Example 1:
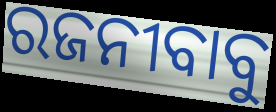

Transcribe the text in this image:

ରଜନୀବାବୁ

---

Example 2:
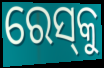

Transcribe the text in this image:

ରେସ୍‌କୁ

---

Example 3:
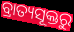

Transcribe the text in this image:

ବ୍ରାତ୍ୟସୂକ୍ତରୁ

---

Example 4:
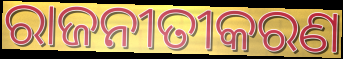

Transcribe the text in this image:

ରାଜନୀତୀକରଣ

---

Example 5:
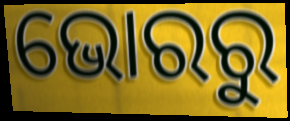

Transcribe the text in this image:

ଭୋରରୁ